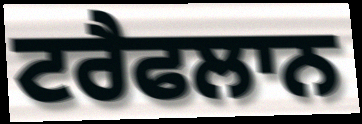
ਟਰੈਫਲਾਨ